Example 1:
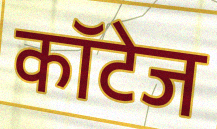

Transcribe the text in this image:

कॉटेज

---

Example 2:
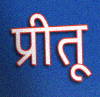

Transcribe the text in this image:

प्रीतू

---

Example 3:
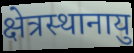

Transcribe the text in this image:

क्षेत्रस्थानायु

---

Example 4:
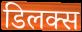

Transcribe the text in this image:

डिलक्स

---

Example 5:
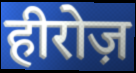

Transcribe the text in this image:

हीरोज़